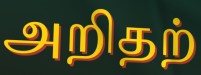
அறிதற்